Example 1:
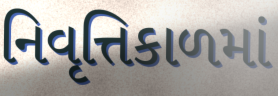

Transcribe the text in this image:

નિવૃત્તિકાળમાં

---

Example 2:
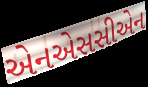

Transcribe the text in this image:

એનએસસીએન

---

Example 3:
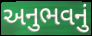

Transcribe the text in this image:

અનુભવનું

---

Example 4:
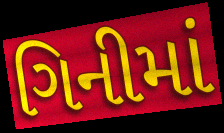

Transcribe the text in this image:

ગિનીમાં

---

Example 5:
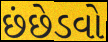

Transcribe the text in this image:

છંછેડવો